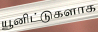
யூனிட்டுகளாக